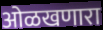
ओळखणारा